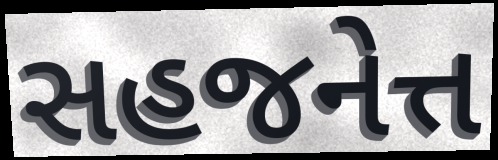
સહજનેત્ત